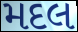
મદલ